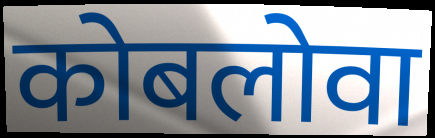
कोबलोवा